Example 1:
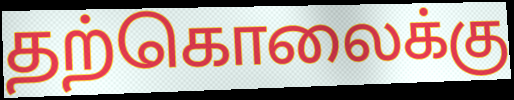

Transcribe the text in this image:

தற்கொலைக்கு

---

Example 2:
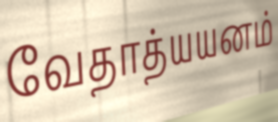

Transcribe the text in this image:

வேதாத்யயனம்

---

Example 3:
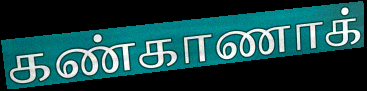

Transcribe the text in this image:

கண்காணாக்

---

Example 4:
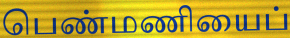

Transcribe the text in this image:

பெண்மணியைப்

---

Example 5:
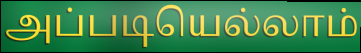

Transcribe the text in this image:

அப்படியெல்லாம்